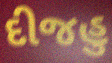
દીજહુ